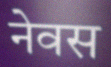
नेवस